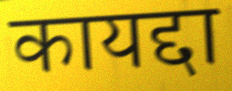
कायद्दा